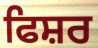
ਫਿਸ਼ਰ